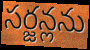
సర్జన్లను